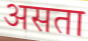
असता